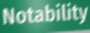
Notability